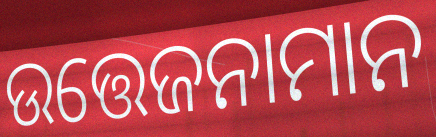
ଉତ୍ତେଜନାମାନ